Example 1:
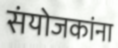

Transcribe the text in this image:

संयोजकांना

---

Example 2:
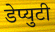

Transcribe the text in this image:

डेप्युटी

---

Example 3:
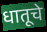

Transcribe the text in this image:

धातूचे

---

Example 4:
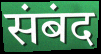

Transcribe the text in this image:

संबंद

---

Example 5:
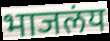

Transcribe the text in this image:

भाजलंय